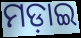
ମଡ଼ାଇ